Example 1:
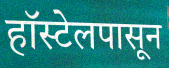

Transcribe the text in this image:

हॉस्टेलपासून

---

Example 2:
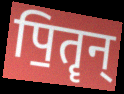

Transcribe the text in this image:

पि॒तॄन्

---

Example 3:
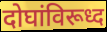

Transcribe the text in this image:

दोघांविरूध्द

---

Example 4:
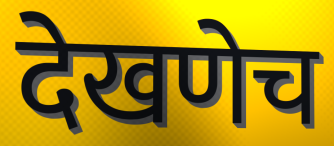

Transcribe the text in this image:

देखणेच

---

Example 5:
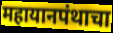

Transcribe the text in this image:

महायानपंथाचा